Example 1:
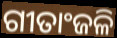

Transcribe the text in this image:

ଗୀତାଂଜଳି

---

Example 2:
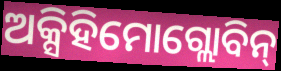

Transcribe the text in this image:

ଅକ୍ସିହିମୋଗ୍ଲୋବିନ୍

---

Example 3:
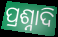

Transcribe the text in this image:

ପ୍ରଶ୍ନାଦି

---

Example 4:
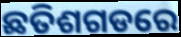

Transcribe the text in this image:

ଛତିଶଗଡରେ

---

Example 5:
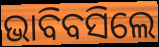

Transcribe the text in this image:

ଭାବିବସିଲେ